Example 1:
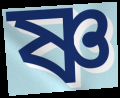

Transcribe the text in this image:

ষ্ণ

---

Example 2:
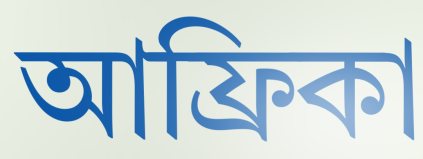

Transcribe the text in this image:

আফ্ৰিকা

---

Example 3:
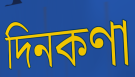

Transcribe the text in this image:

দিনকণা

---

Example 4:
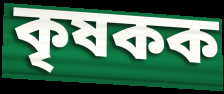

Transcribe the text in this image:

কৃষকক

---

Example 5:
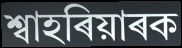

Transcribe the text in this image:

শ্বাহৰিয়াৰক